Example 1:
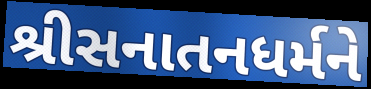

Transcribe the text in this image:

શ્રીસનાતનધર્મને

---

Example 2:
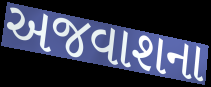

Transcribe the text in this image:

અજવાશના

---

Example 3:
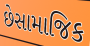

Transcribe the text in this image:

છેસામાજિક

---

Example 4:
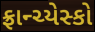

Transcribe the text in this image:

ફ્રાન્ચ્યેસ્કો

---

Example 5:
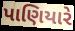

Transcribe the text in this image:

પાણિયારે